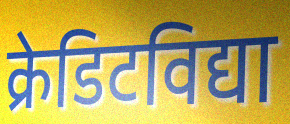
क्रेडिटविद्या